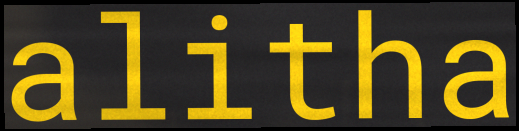
alitha